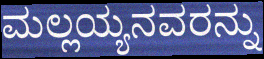
ಮಲ್ಲಯ್ಯನವರನ್ನು